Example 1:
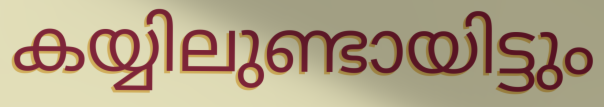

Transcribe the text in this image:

കയ്യിലുണ്ടായിട്ടും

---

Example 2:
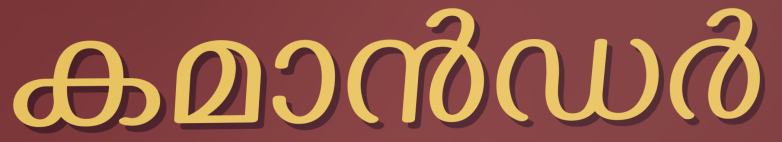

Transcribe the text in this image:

കമാൻഡർ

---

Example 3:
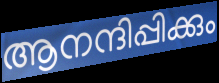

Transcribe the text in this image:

ആനന്ദിപ്പിക്കും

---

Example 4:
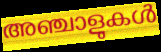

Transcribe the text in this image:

അഞ്ചാളുകൾ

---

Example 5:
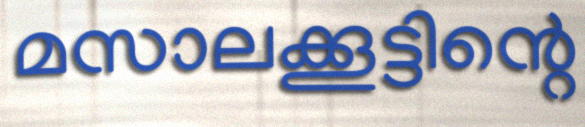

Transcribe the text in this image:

മസാലക്കൂട്ടിന്റെ